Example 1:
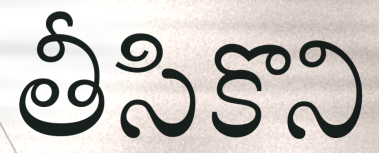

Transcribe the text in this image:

తీసికొని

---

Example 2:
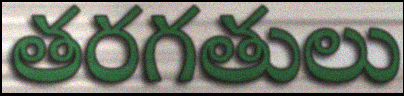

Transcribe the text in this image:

తరగతులు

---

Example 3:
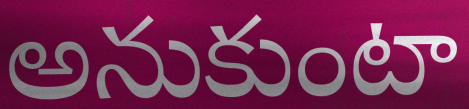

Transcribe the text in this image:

అనుకుంటా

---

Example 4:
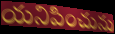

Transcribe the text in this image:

యనిపించును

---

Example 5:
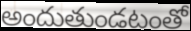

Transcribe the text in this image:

అందుతుండటంతో